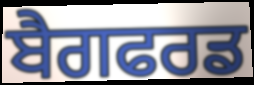
ਬੈਗਫਰਡ